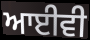
ਆਈਵੀ